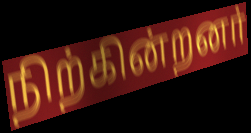
நிற்கின்றனர்